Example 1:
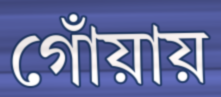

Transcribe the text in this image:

গোঁয়ায়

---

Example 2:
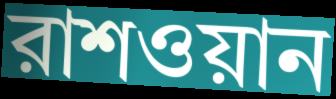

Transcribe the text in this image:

রাশওয়ান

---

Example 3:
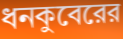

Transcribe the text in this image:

ধনকুবেরের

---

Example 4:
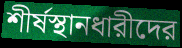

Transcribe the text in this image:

শীর্ষস্থানধারীদের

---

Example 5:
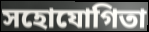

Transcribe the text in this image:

সহোযোগিতা